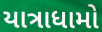
યાત્રાધામો